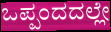
ಒಪ್ಪಂದದಲ್ಲೇ